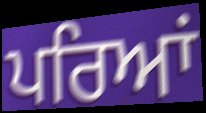
ਪਰਿਆਂ